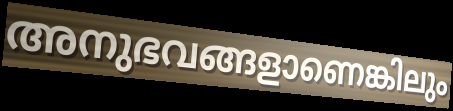
അനുഭവങ്ങളാണെങ്കിലും